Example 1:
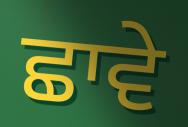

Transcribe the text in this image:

ਛਾਵੇ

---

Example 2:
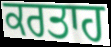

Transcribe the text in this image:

ਕਰਤਾਹ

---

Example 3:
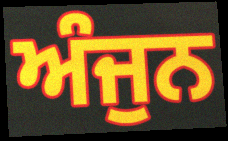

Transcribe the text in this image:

ਅੰਜੁਨ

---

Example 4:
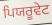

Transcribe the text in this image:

ਪਿਯਰੂਵੇਟ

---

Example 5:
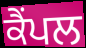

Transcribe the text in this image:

ਕੈਂਪਲ